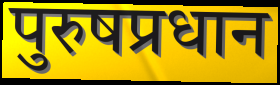
पुरुषप्रधान